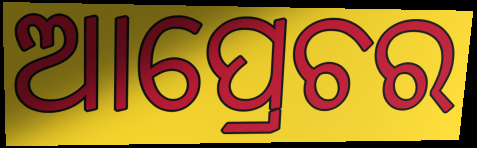
ଆପ୍ରେଚର